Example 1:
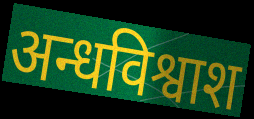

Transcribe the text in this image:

अन्धविश्वाश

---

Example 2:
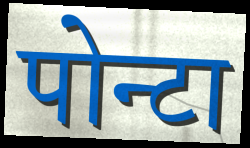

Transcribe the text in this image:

पोन्टा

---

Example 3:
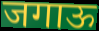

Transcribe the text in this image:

जगाऊ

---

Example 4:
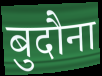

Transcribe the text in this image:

बुदौना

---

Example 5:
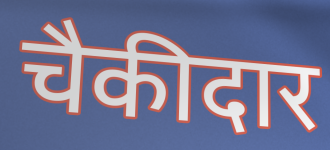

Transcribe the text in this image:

चैकीदार